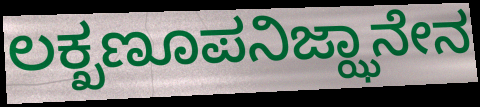
ಲಕ್ಖಣೂಪನಿಜ್ಝಾನೇನ